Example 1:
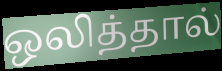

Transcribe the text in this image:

ஒலித்தால்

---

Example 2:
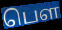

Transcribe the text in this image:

பெள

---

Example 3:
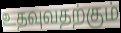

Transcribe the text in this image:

உதவுவதற்கும்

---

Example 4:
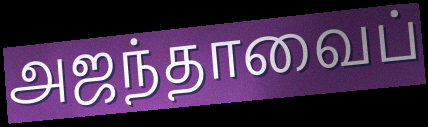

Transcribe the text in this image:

அஜந்தாவைப்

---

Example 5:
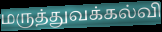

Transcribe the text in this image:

மருத்துவக்கல்வி